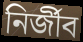
নির্জীব